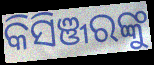
କିସିଞ୍ଜରଙ୍କୁ